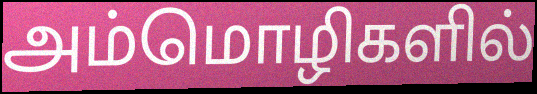
அம்மொழிகளில்